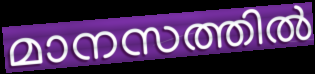
മാനസത്തിൽ